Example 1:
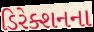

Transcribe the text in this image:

ડિરેક્શનના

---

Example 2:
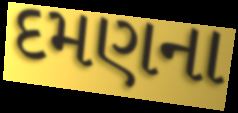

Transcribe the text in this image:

દમણના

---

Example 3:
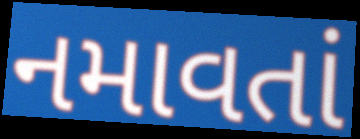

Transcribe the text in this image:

નમાવતાં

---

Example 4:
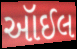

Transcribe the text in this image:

ઑઈલ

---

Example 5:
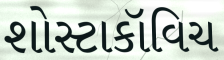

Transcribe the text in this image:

શોસ્ટાકૉવિચ